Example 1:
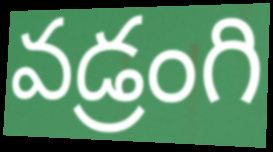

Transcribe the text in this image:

వడ్రంగి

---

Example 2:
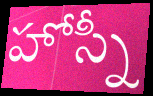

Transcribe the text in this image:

హోస్నీ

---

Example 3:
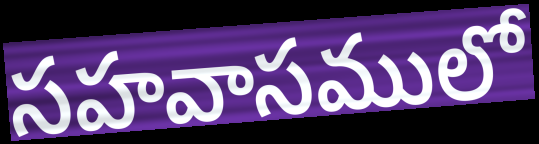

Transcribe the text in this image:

సహవాసములో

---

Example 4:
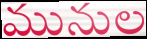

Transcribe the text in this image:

మునుల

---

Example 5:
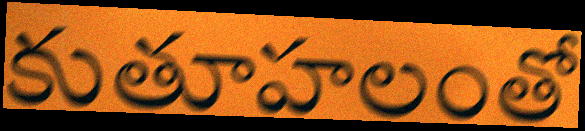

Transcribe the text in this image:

కుతూహలంతో